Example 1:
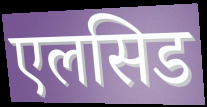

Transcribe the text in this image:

एलसिड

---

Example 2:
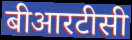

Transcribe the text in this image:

बीआरटीसी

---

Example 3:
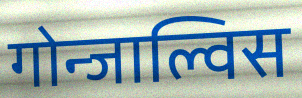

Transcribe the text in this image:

गोन्जाल्विस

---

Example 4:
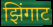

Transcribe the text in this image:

झिंगाट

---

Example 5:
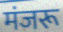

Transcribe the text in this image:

मंजरू